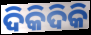
ଦିକିଦିକି